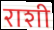
राशी